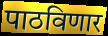
पाठविणार